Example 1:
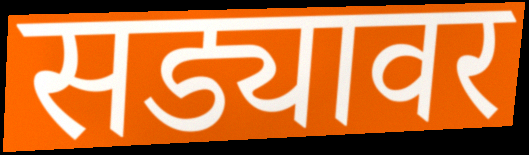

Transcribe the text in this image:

सड्यावर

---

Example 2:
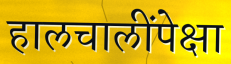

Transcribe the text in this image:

हालचालींपेक्षा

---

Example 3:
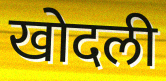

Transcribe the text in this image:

खोदली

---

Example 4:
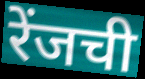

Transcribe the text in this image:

रेंजची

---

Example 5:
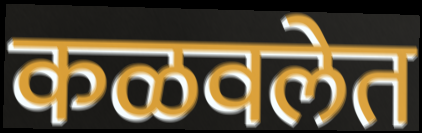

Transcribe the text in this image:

कळवलेत